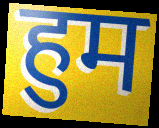
हुम